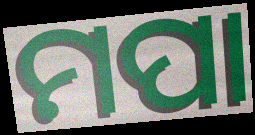
ମପା